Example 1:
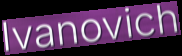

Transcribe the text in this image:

Ivanovich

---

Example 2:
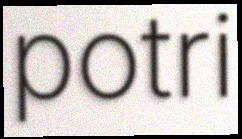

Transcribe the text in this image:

potri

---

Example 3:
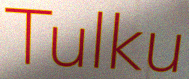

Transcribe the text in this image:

Tulku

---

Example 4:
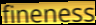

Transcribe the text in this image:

fineness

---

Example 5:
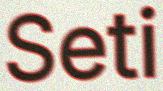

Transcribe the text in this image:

Seti